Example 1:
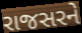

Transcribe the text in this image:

રાજસરને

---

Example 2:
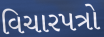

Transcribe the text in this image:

વિચારપત્રો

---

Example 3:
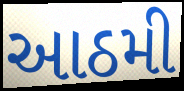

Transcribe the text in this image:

આઠમી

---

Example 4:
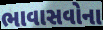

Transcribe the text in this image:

ભાવાસવોના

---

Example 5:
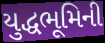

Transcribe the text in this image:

યુદ્ધભૂમિની